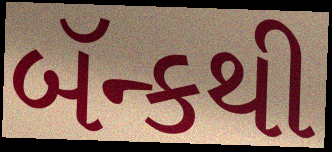
બૅન્કથી